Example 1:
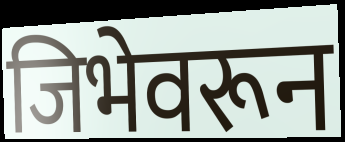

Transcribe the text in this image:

जिभेवरून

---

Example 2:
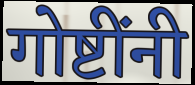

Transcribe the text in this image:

गोष्टींनी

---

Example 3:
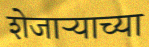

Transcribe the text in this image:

शेजाऱ्याच्या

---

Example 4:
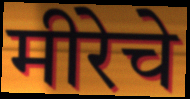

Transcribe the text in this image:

मीरेचे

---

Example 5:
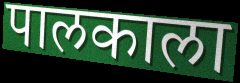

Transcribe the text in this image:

पालकाला